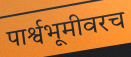
पार्श्वभूमीवरच